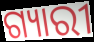
ଗ୍ୟାରୀ